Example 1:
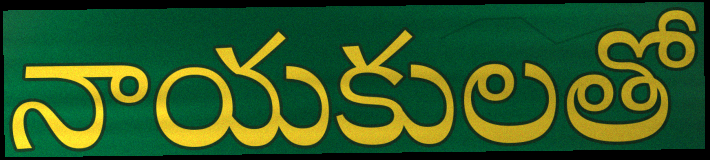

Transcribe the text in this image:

నాయకులతో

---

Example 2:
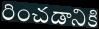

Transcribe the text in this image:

రించడానికి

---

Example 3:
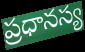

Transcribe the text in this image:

ప్రధానస్య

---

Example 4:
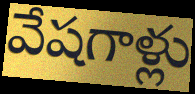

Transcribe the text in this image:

వేషగాళ్లు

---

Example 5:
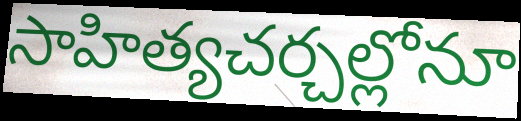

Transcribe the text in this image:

సాహిత్యచర్చల్లోనూ